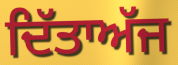
ਦਿੱਤਾਅੱਜ